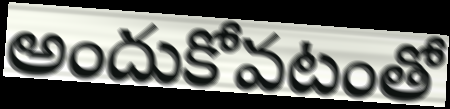
అందుకోవటంతో